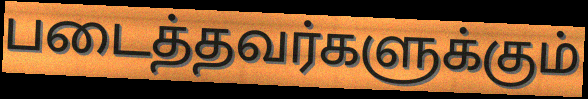
படைத்தவர்களுக்கும்